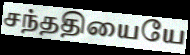
சந்ததியையே